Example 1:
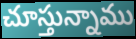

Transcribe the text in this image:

చూస్తున్నాము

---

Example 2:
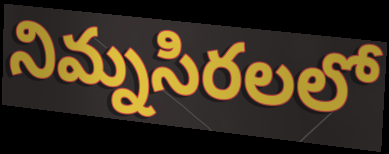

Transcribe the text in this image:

నిమ్నసిరలలో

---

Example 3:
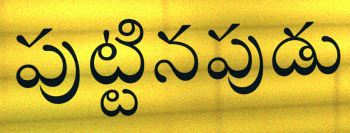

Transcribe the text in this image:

పుట్టినపుడు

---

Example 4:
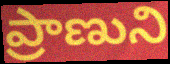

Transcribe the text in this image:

ప్రాణుని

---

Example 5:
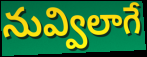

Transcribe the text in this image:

నువ్విలాగే